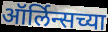
ऑर्लिन्सच्या